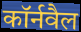
कॉर्नवैल